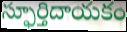
స్ఫూర్తిదాయకం